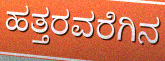
ಹತ್ತರವರೆಗಿನ